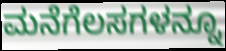
ಮನೆಗೆಲಸಗಳನ್ನೂ